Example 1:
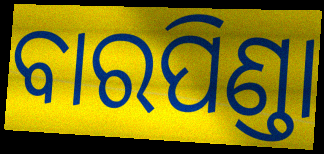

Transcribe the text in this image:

ବାରପିଣ୍ଡା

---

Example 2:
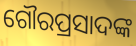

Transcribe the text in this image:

ଗୌରପ୍ରସାଦଙ୍କ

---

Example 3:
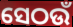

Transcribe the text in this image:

ସେଠଉଁ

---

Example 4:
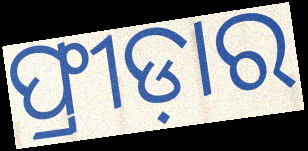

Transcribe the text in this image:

ଫ୍ରୀଡ଼ାର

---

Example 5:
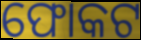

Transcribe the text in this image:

ଫୋକଟ